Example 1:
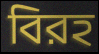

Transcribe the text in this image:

বিরহ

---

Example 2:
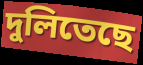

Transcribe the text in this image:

দুলিতেছে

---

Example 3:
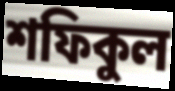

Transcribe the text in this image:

শফিকুল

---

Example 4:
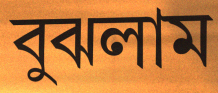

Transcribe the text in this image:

বুঝলাম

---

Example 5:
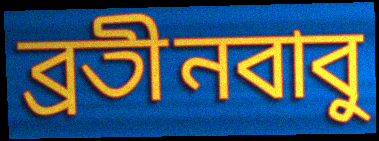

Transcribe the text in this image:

ব্রতীনবাবু